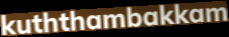
kuththambakkam